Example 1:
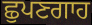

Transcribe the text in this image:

ਛੁਪਣਗਾਹ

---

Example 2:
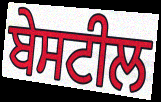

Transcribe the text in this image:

ਬੇਸਟੀਲ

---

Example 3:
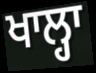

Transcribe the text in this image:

ਖਾਲ੍ਹਾ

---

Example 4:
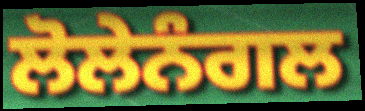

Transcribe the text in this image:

ਲੋਲੇਨੰਗਲ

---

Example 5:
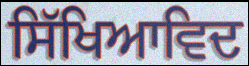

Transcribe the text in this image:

ਸਿੱਖਿਆਵਿਦ